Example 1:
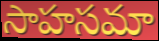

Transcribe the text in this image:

సాహసమా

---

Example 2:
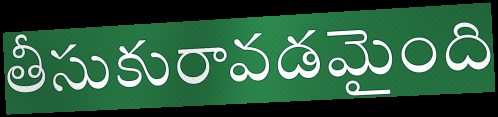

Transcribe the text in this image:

తీసుకురావడమైంది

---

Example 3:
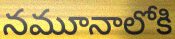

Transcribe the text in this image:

నమూనాలోకి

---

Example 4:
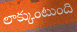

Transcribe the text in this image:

లాక్కుంటుంది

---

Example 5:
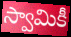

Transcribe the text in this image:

స్వామికీ